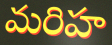
మరిహ